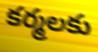
కర్మలకు